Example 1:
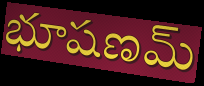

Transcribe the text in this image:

భూషణమ్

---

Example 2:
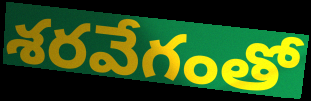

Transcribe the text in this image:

శరవేగంతో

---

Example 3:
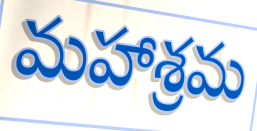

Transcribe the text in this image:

మహాశ్రమ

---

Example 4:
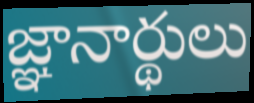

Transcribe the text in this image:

జ్ఞానార్థులు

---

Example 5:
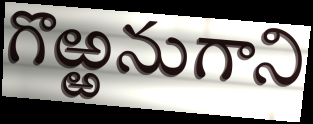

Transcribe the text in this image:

గొఱ్ఱనుగాని